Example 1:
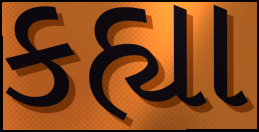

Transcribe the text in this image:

કહ્યા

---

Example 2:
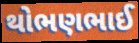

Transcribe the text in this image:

થોભણભાઈ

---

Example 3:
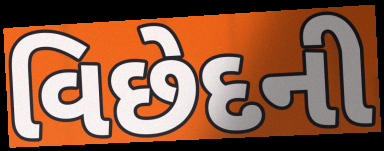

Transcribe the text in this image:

વિછેદની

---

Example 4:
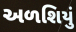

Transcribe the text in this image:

અળશિયું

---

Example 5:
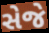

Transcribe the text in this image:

સેજે